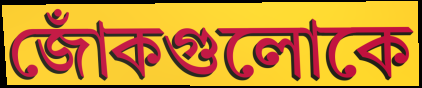
জোঁকগুলোকে